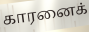
காரனைக்